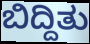
ಬಿದ್ದಿತು